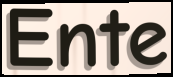
Ente